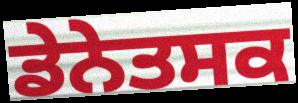
ਡੇਨੇਤਸਕ